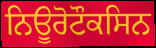
ਨਿਊਰੋਟੌਕਸਿਨ